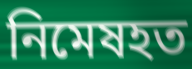
নিমেষহত